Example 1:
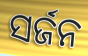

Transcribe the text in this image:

ସର୍ଜନ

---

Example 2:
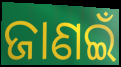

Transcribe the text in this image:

ଜାଣଇଁ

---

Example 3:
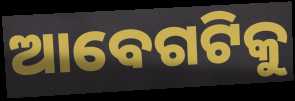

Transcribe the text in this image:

ଆବେଗଟିକୁ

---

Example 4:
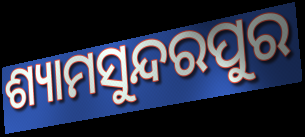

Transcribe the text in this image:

ଶ୍ୟାମସୁନ୍ଦରପୁର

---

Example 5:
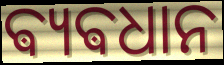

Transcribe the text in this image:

ଵ୍ୟଵଧାନ